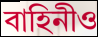
বাহিনীও